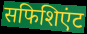
सफिशिएंट